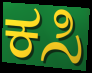
ಕಸಿ